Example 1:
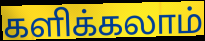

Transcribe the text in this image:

களிக்கலாம்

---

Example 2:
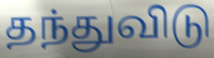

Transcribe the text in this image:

தந்துவிடு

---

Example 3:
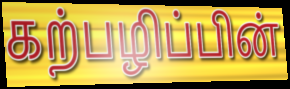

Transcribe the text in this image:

கற்பழிப்பின்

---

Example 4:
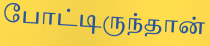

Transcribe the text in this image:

போட்டிருந்தான்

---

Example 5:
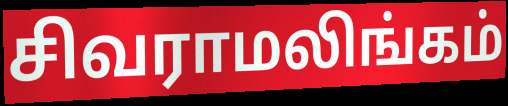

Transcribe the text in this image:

சிவராமலிங்கம்